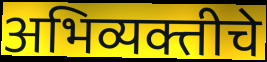
अभिव्यक्तीचे